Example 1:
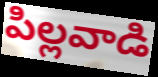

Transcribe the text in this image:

పిల్లవాడి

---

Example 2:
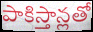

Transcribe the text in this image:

పాకిస్తాన్లతో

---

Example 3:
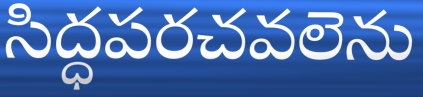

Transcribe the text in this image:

సిద్ధపరచవలెను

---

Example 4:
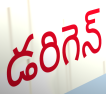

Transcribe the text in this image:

డరిగెన్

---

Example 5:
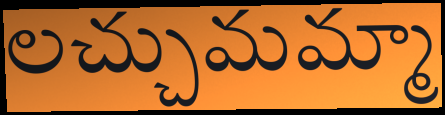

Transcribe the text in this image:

లచ్చుమమ్మా